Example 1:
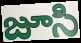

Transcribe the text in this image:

జూసి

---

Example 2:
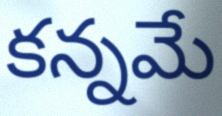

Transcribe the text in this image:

కన్నమే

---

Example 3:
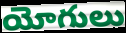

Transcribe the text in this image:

యోగులు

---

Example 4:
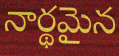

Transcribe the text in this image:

నార్థమైన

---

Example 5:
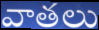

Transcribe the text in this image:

వాతలు